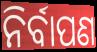
ନିର୍ବାପଣ